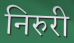
निरुरी